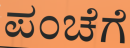
ಪಂಚೆಗೆ